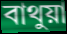
বাথুয়া